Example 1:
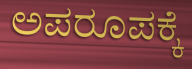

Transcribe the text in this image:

ಅಪರೂಪಕ್ಕೆ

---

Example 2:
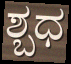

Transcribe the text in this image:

ಶ್ಬಧ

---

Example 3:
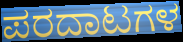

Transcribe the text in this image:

ಪರದಾಟಗಳ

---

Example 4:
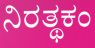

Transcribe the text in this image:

ನಿರತ್ಥಕಂ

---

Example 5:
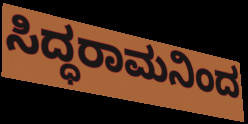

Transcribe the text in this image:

ಸಿದ್ಧರಾಮನಿಂದ